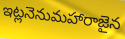
ఇట్లనెనుమహారాజైన